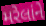
મરેલાંને